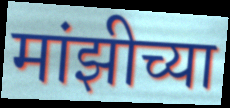
मांझीच्या